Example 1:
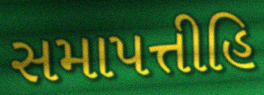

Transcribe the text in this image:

સમાપત્તીહિ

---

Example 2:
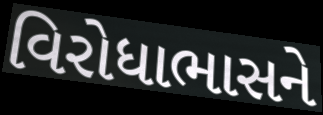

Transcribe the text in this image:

વિરોધાભાસને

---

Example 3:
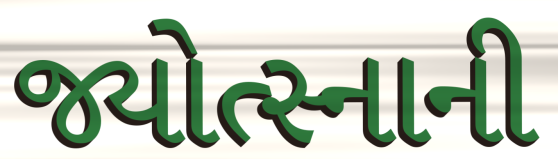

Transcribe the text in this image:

જ્યોત્સ્નાની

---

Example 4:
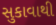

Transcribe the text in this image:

સુકાવાથી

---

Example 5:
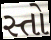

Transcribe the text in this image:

સ્તો